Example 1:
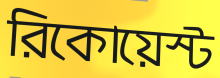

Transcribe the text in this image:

রিকোয়েস্ট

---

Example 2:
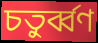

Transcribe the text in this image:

চতুর্ব্বণ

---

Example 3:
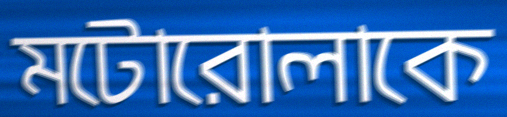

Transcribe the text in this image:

মটোরোলাকে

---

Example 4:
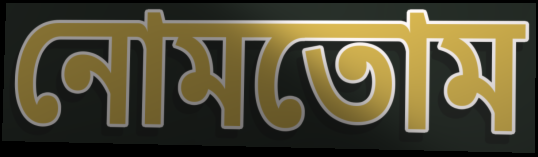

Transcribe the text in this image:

নোমতোম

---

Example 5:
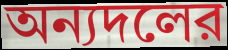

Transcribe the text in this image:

অন্যদলের